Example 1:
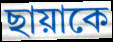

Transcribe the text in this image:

ছায়াকে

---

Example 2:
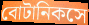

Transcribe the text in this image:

বোটানিকসে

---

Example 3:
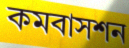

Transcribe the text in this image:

কমবাসশন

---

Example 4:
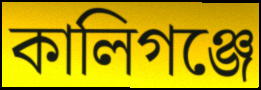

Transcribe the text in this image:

কালিগঞ্জে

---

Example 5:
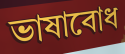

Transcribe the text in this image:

ভাষাবোধ